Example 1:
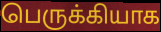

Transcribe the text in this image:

பெருக்கியாக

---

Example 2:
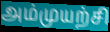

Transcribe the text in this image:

அம்முயற்சி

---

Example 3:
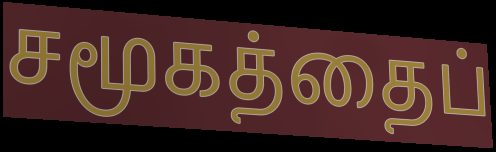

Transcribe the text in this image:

சமூகத்தைப்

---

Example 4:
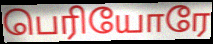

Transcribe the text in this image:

பெரியோரே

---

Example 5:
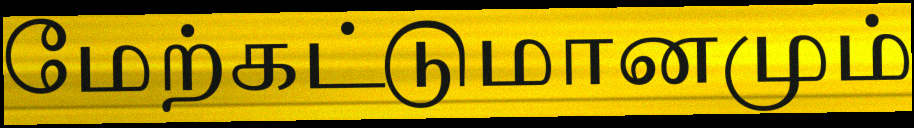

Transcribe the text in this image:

மேற்கட்டுமானமும்